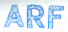
ARF